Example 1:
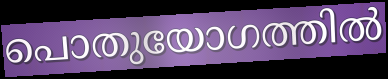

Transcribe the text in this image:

പൊതുയോഗത്തിൽ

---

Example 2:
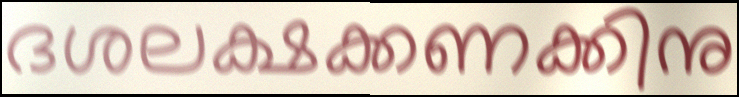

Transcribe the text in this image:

ദശലക്ഷക്കണക്കിനു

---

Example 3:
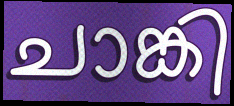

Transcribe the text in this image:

ചാങ്കി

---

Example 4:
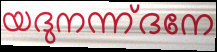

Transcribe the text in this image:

യദുനന്ന്ദനേ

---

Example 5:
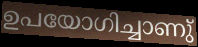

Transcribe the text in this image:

ഉപയോഗിച്ചാണു്